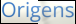
Origens